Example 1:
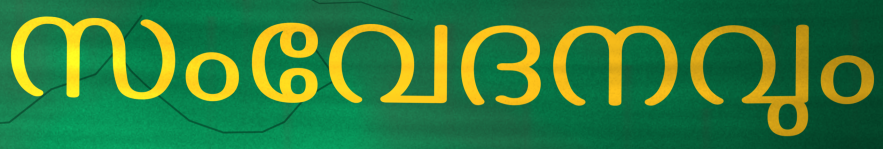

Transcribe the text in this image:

സംവേദനവും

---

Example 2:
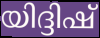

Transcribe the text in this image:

യിദ്ദിഷ്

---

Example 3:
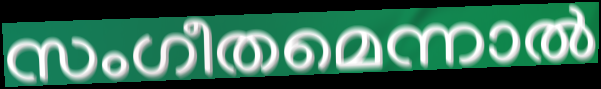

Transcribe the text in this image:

സംഗീതമെന്നാൽ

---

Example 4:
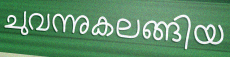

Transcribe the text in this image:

ചുവന്നുകലങ്ങിയ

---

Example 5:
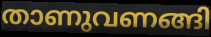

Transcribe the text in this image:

താണുവണങ്ങി